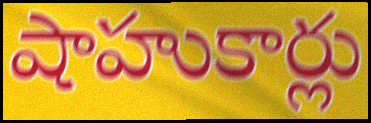
షాహుకార్లు